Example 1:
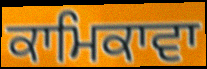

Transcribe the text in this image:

ਕਾਮਿਕਾਵਾ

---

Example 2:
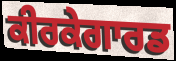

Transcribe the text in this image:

ਕੀਰਕੇਗਾਰਡ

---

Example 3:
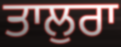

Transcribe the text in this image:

ਤਾਲੁਰਾ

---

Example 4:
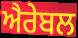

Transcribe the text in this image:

ਐਰੇਬਲ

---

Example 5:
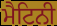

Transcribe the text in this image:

ਮੈਟਿਨੀ